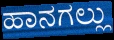
ಹಾನಗಲ್ಲು